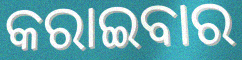
କରାଇବାର